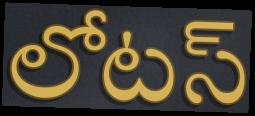
లోటస్